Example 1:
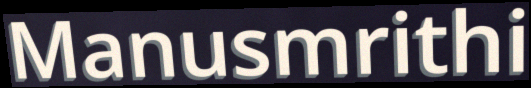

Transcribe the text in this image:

Manusmrithi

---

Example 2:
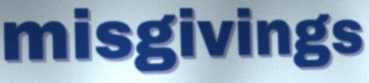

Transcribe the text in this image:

misgivings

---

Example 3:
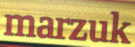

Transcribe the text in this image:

marzuk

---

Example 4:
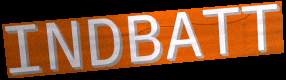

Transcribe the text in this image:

INDBATT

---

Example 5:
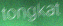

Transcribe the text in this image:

tongkat